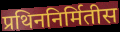
प्रथिननिर्मितीस